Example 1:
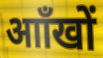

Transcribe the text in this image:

आाँखों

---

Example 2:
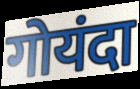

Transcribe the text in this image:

गोयंदा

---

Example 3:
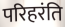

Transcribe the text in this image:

परिहरंति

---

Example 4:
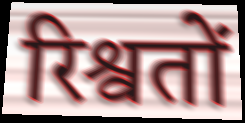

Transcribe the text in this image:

रिश्वतों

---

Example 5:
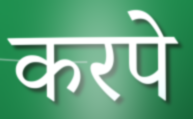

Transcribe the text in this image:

करपे